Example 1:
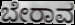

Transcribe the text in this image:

ಬೇರಾವ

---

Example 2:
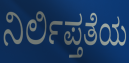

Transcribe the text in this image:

ನಿರ್ಲಿಪ್ತತೆಯ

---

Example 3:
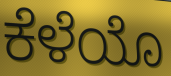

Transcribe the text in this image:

ಕೆಳೆಯೊ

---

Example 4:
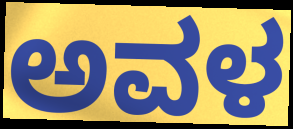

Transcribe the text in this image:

ಅವಳ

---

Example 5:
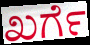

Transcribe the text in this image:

ಖರ್ಗೆ